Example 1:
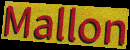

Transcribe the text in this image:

Mallon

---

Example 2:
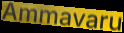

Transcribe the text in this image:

Ammavaru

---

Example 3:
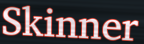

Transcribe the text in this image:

Skinner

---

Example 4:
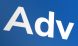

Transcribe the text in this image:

Adv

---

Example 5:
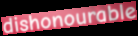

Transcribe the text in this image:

dishonourable